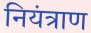
नियंत्राण